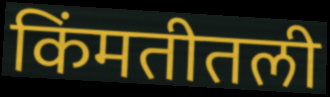
किंमतीतली